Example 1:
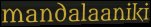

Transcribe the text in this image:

mandalaaniki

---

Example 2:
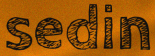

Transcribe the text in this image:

sedin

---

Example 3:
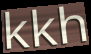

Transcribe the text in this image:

kkh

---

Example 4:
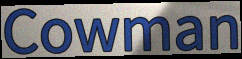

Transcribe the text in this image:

Cowman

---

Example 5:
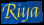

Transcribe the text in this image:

Riya